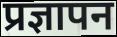
प्रज्ञापन